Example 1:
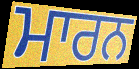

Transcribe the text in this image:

ਮਾਰਨ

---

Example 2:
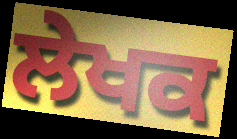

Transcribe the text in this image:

ਲੇਖਕ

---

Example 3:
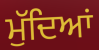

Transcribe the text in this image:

ਮੁੱਦਿਆਂ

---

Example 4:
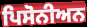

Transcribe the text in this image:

ਪਿਸੋਨੀਅਨ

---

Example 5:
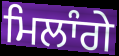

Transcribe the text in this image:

ਮਿਲਾੰਗੇ